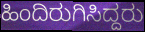
ಹಿಂದಿರುಗಿಸಿದ್ದರು